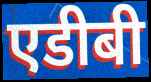
एडीबी